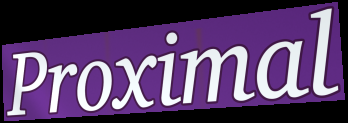
Proximal